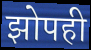
झोपही